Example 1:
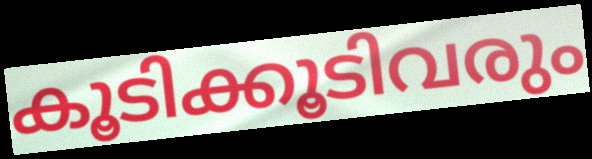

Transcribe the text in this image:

കൂടിക്കൂടിവരും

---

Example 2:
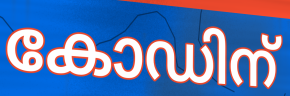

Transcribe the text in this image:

കോഡിന്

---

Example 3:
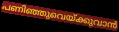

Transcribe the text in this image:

പണിഞ്ഞുവെയ്ക്കുവാൻ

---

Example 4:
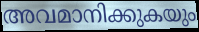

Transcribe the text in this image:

അവമാനിക്കുകയും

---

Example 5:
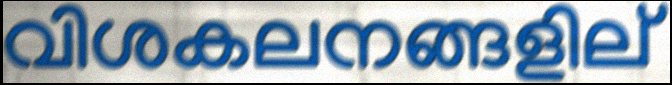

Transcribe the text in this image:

വിശകലനങ്ങളില്